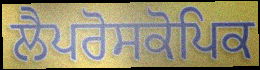
ਲੈਪਰੋਸਕੋਪਿਕ